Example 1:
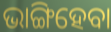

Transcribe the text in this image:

ଭାଙ୍ଗିହେବା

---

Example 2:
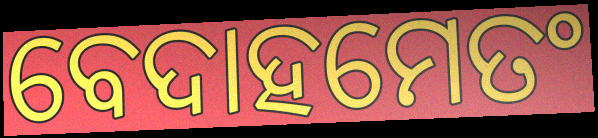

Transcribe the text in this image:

ବେଦାହମେତଂ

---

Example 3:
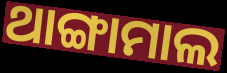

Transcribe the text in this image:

ଥାଙ୍ଗାମାଲ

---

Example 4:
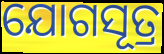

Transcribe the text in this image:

ଯୋଗସୂତ୍ର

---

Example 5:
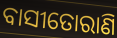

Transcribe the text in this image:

ବାସୀତୋରାଣି